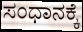
ಸಂಧಾನಕ್ಕೆ